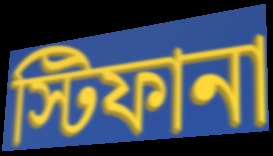
স্টিফানা